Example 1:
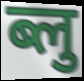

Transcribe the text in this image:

ब्लु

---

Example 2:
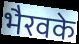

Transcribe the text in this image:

भैरवके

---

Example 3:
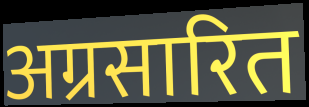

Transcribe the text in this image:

अग्रसारित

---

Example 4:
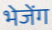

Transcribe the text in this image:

भेजेंग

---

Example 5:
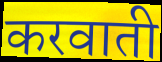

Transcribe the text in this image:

करवाती